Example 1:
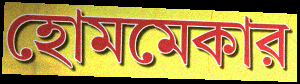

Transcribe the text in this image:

হোমমেকার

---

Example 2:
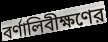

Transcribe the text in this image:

বর্ণালিবীক্ষণের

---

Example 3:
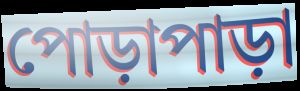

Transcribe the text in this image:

পোড়াপাড়া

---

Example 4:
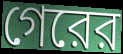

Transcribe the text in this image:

গেরের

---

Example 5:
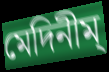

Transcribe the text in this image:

মেদিনীম্